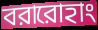
বরারোহাং